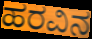
ಹರವಿನ